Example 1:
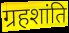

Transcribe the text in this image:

ग्रहशांति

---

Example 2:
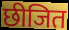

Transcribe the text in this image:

छीजित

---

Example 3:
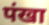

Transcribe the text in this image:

पंखा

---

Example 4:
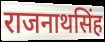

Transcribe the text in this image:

राजनाथसिंह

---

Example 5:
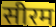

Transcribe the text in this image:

सीरम